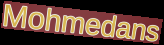
Mohmedans